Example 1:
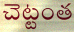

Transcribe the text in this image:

చెట్టంత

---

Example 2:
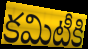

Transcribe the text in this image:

కమిటీకి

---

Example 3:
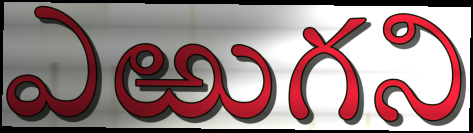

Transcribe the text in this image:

ఎఱుగని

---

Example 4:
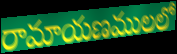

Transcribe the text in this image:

రామాయణములలో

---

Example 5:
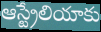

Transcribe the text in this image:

ఆస్ట్రేలియాకు